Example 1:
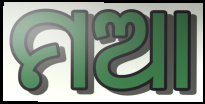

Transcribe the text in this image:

ମଆ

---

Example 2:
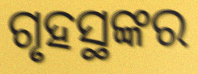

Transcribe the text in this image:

ଗୃହସ୍ଥଙ୍କର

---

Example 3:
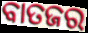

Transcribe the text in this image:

ବାତଜର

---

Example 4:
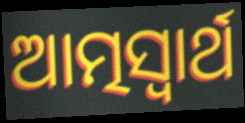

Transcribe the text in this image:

ଆତ୍ମସ୍ଵାର୍ଥ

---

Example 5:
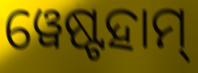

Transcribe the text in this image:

ୱେଷ୍ଟହାମ୍